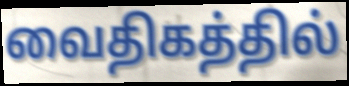
வைதிகத்தில்